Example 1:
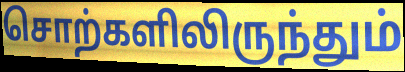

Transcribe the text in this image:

சொற்களிலிருந்தும்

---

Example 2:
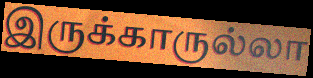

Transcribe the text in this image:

இருக்காருல்லா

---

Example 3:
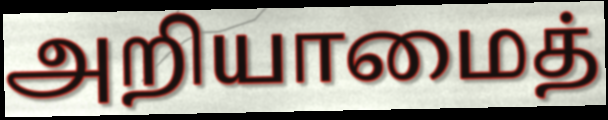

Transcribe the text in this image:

அறியாமைத்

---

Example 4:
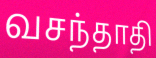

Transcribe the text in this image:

வசந்தாதி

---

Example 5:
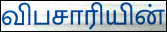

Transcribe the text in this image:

விபசாரியின்